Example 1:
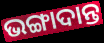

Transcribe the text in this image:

ଭଙ୍ଗାଦାନ୍ତ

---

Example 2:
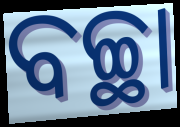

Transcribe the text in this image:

ବଚ୍ଛା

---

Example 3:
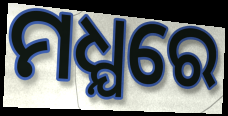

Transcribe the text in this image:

ମଧ୍ଯରେ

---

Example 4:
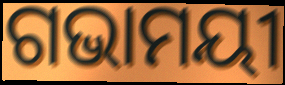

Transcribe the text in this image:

ଗଭାମୟୀ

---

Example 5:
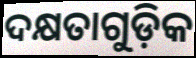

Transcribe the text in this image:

ଦକ୍ଷତାଗୁଡ଼ିକ